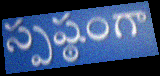
స్పష్ఠంగా